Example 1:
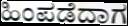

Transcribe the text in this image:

ಹಿಂಪಡೆದಾಗ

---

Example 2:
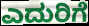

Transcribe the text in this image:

ಎದುರಿಗೆ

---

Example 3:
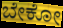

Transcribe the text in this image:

ಬೇಕೋ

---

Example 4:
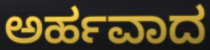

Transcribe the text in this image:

ಅರ್ಹವಾದ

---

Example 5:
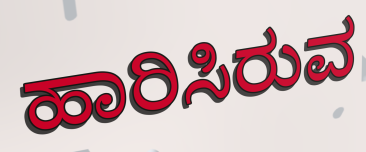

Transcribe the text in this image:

ಹಾರಿಸಿರುವ